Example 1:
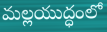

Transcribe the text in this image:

మల్లయుద్ధంలో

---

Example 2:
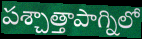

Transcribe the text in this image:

పశ్చాత్తాపాగ్నిలో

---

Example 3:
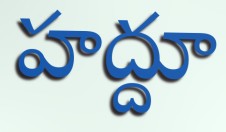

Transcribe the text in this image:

హద్దూ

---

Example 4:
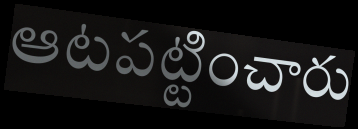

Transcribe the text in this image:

ఆటపట్టించారు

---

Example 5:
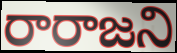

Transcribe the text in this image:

రారాజని